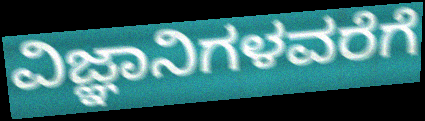
ವಿಜ್ಞಾನಿಗಳವರೆಗೆ